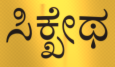
ಸಿಕ್ಖೇಥ